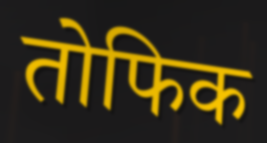
तोफिक